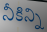
నీకిన్ని